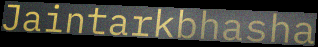
Jaintarkbhasha